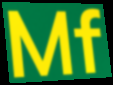
Mf